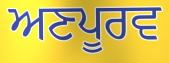
ਅਣਪੂਰਵ